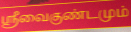
ஸ்ரீவைகுண்டமும்